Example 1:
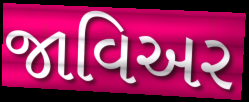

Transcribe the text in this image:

જાવિઅર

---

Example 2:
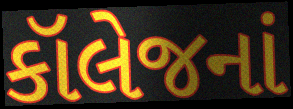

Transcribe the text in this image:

કૉલેજનાં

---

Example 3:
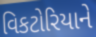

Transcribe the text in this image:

વિકટોરિયાને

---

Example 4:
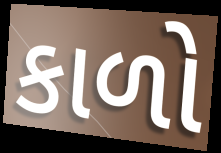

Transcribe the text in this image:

કાળો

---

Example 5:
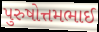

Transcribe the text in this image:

પુરુષોત્તમભાઈ